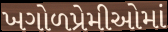
ખગોળપ્રેમીઓમાં